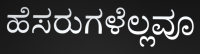
ಹೆಸರುಗಳೆಲ್ಲವೂ